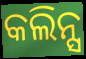
କଲିନ୍ସ